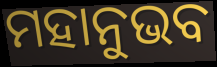
ମହାନୁଭବ